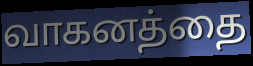
வாகனத்தை